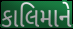
કાલિમાને